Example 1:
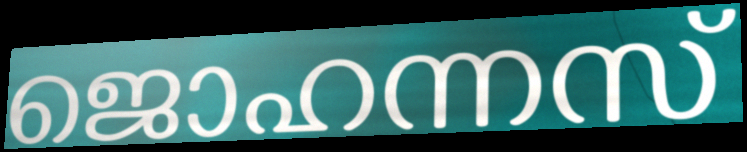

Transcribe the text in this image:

ജൊഹന്നസ്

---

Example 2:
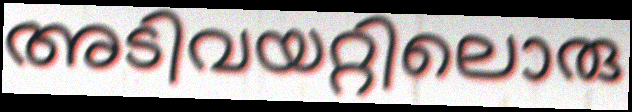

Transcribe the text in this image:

അടിവയറ്റിലൊരു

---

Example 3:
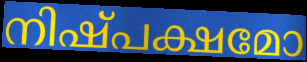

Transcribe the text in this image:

നിഷ്പക്ഷമോ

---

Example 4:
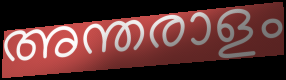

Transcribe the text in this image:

അന്തരാളം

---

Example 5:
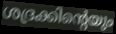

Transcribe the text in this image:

ശദ്രക്കിന്റെയും